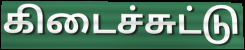
கிடைச்சுட்டு